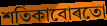
শতিকাবোৰতো